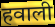
हवाली